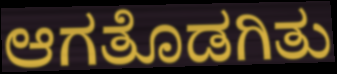
ಆಗತೊಡಗಿತು